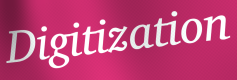
Digitization